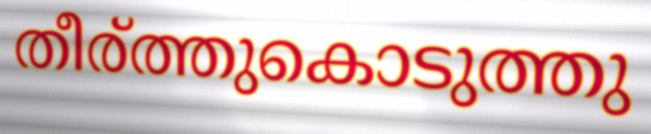
തീര്ത്തുകൊടുത്തു